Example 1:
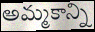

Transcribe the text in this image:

అమ్మకాన్ని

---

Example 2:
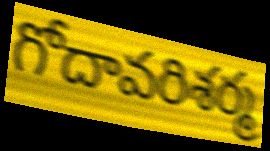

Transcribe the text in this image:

గోదావరిశర్మ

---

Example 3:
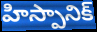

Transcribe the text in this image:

హిస్పానిక్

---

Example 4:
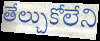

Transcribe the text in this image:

తేల్చుకోలేని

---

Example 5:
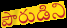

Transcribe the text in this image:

పౌరుడిని